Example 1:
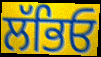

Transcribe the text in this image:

ਲੱਭਿਓ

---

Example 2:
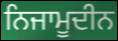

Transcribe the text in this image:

ਨਿਜਾਮੂਦੀਨ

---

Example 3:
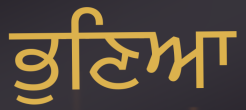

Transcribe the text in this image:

ਭੁਣਿਆ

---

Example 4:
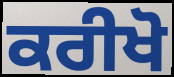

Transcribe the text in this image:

ਕਰੀਖੋ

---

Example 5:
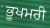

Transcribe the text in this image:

ਭੂਖਮਰੀ